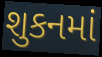
શુકનમાં